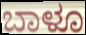
ಬಾಳೂ